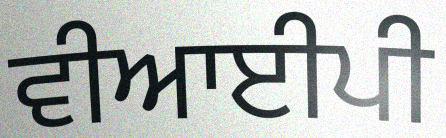
ਵੀਆਈਪੀ